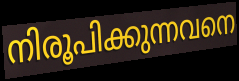
നിരൂപിക്കുന്നവനെ